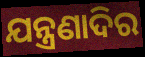
ଯନ୍ତ୍ରଣାଦିର